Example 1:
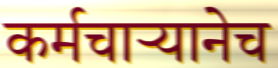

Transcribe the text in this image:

कर्मचाऱ्यानेच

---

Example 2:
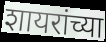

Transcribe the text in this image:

शायरांच्या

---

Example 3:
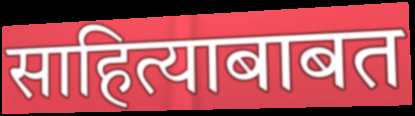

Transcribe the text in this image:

साहित्याबाबत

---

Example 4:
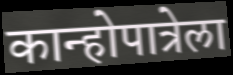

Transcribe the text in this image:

कान्होपात्रेला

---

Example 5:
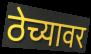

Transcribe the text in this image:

ठेच्यावर